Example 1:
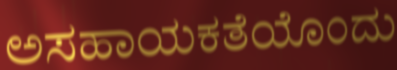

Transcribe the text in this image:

ಅಸಹಾಯಕತೆಯೊಂದು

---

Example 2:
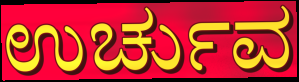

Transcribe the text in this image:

ಉರ್ಚುವ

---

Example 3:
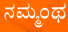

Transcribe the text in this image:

ನಮ್ಮಂಥ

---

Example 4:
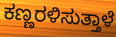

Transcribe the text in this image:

ಕಣ್ಣರಳಿಸುತ್ತಾಳೆ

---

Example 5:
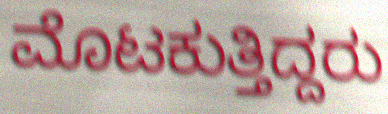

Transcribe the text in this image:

ಮೊಟಕುತ್ತಿದ್ದರು